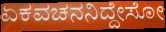
ಏಕವಚನನಿದ್ದೇಸೋ